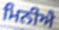
ਮਿਨੀਐ